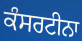
ਕੰਸਰਟੀਨਾ